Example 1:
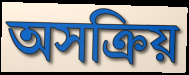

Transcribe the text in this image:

অসক্রিয়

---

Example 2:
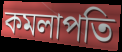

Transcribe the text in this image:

কমলাপতি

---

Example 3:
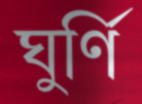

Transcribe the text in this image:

ঘুর্ণি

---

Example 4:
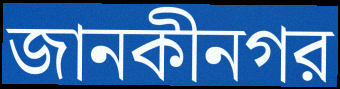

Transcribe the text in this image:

জানকীনগর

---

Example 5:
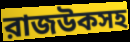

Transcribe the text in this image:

রাজউকসহ